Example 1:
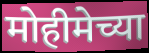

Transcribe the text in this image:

मोहीमेच्या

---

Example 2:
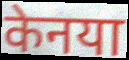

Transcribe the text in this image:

केनया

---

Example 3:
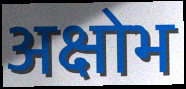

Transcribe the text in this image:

अक्षोभ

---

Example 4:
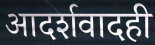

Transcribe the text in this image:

आदर्शवादही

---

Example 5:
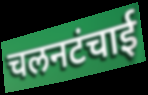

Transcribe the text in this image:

चलनटंचाई